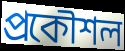
প্ৰকৌশল